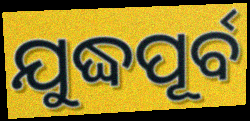
ଯୁଦ୍ଧପୂର୍ବ